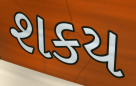
શકય